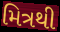
મિત્રથી